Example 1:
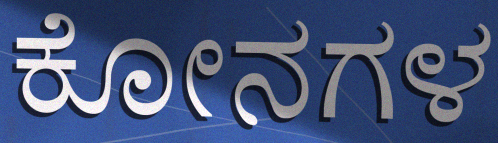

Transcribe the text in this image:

ಕೋನಗಳ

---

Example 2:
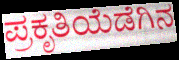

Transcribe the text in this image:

ಪ್ರಕೃತಿಯೆಡೆಗಿನ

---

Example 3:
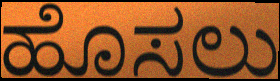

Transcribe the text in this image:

ಹೊಸಲು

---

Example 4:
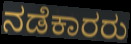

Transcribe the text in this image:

ನಡೆಕಾರರು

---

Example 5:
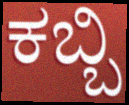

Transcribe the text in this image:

ಕಬ್ಬಿ